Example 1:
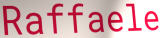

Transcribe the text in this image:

Raffaele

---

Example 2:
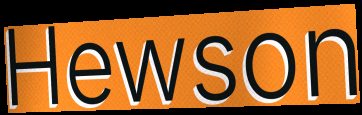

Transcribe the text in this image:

Hewson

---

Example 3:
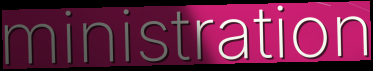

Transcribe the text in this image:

ministration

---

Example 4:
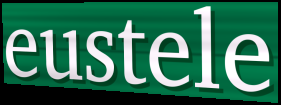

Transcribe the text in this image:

eustele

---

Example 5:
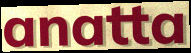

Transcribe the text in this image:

anatta